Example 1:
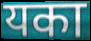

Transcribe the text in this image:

यका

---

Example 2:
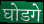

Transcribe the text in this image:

घोडगे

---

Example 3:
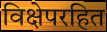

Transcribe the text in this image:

विक्षेपरहित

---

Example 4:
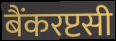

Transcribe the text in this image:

बैंकरप्टसी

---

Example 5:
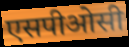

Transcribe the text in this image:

एसपीओसी